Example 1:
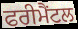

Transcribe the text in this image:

ਫਰੀਮੈਂਟਲ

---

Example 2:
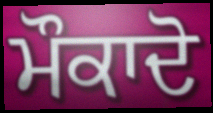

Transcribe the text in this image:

ਮੌਕਾਦੋ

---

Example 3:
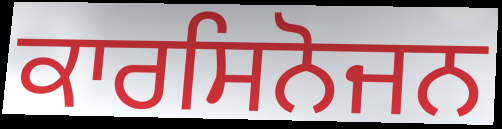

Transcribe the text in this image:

ਕਾਰਸਿਨੋਜਨ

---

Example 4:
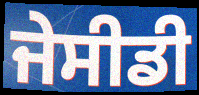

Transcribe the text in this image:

ਜੇਸੀਡੀ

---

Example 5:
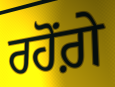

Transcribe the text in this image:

ਰਹੋਂਗ਼ੇ